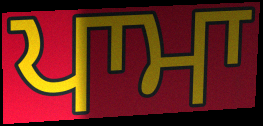
ਪਾਮਾ